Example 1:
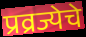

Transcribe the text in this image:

प्रव्रज्येचे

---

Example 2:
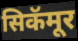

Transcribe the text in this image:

सिकॅमूर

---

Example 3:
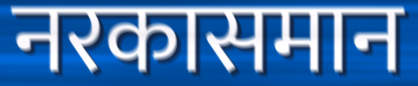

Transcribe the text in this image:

नरकासमान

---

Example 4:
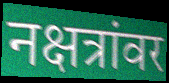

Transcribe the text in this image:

नक्षत्रांवर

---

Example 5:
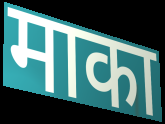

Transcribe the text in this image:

माका